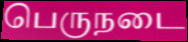
பெருநடை